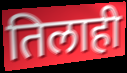
तिलाही